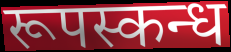
रूपस्कन्ध